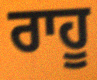
ਰਾਹੂ